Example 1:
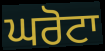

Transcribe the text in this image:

ਘਰੋਟਾ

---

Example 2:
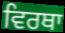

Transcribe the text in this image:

ਵਿਰਥਾ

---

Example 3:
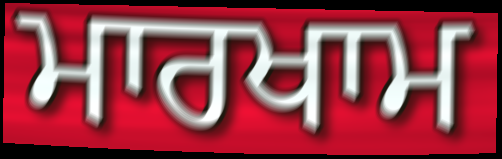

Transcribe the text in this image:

ਮਾਰਖਾਮ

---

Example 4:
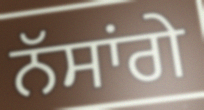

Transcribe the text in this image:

ਨੱਸਾਂਗੇ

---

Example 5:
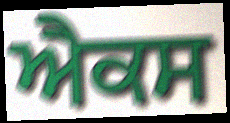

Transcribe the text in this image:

ਐਕਸ